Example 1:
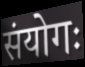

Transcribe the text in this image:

संयोगः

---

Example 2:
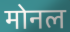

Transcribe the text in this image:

मोनल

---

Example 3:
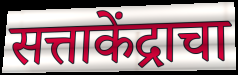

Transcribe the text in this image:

सत्ताकेंद्राचा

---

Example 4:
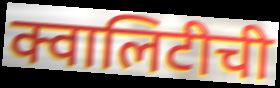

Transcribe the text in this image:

क्वालिटीची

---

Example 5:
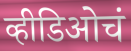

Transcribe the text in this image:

व्हीडिओचं